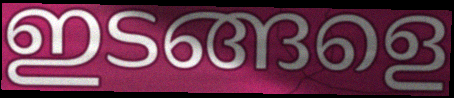
ഇടങ്ങളെ